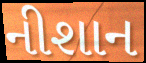
નીશાન